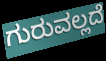
ಗುರುವಲ್ಲದೆ